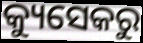
କ୍ୟୁସେକରୁ